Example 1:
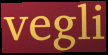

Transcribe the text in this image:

vegli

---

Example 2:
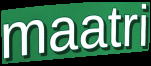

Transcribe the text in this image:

maatri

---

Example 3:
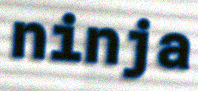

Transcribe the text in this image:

ninja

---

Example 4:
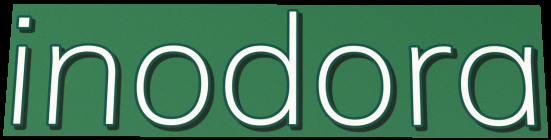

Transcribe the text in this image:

inodora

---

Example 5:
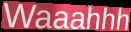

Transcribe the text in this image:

Waaahhh